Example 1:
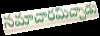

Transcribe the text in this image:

సమాచారమిచ్చాడు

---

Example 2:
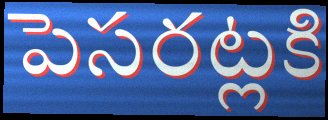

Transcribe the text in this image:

పెసరట్లకి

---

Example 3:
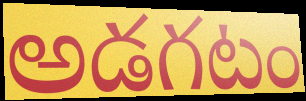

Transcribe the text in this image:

అడగటం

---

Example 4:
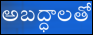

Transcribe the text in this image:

అబద్ధాలతో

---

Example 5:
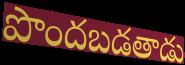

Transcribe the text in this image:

పొందబడతాడు